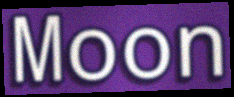
Moon